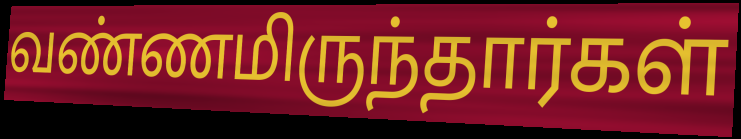
வண்ணமிருந்தார்கள்